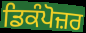
ਡਿਕੰਪੋਜ਼ਰ